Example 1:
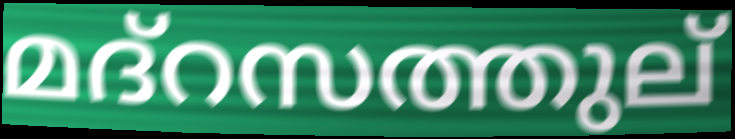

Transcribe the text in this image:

മദ്റസത്തുല്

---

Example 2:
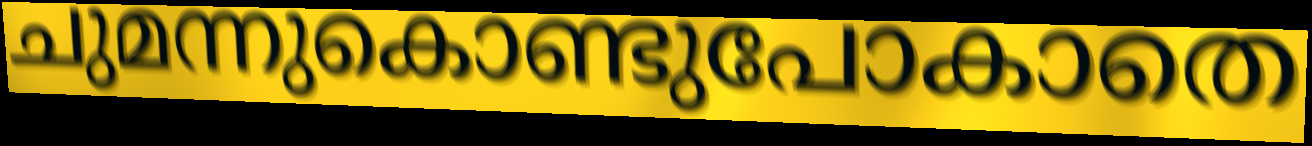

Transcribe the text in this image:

ചുമന്നുകൊണ്ടുപോകാതെ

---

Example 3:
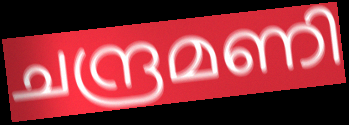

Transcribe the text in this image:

ചന്ദ്രമണി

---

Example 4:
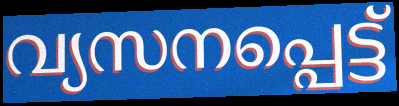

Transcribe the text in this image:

വ്യസനപ്പെട്ട്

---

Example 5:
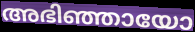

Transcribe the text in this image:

അഭിഞ്ഞായോ